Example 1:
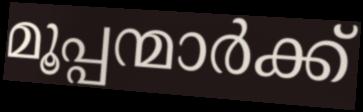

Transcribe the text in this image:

മൂപ്പന്മാർക്ക്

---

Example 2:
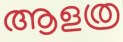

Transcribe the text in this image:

ആളത്ര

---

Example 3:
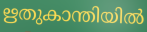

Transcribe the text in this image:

ഋതുകാന്തിയിൽ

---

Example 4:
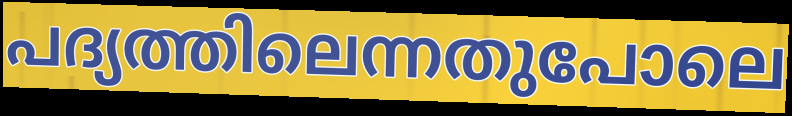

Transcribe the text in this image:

പദ്യത്തിലെന്നതുപോലെ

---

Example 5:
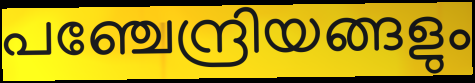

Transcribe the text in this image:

പഞ്ചേന്ദ്രിയങ്ങളും